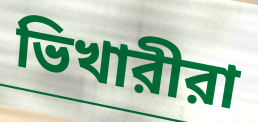
ভিখারীরা